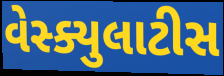
વેસ્ક્યુલાટીસ